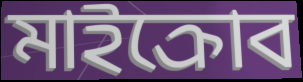
মাইক্রোব